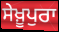
ਸੇਖ਼ੂਪੁਰਾ